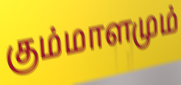
கும்மாளமும்